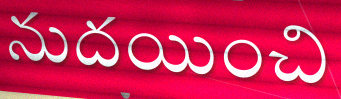
నుదయించి